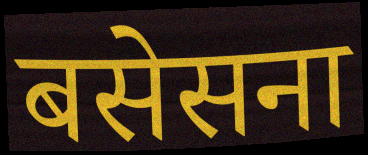
बसेसना